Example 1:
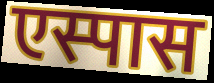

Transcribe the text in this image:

एस्पास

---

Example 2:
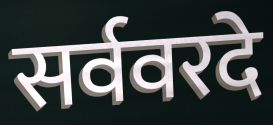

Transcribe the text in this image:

सर्ववरदे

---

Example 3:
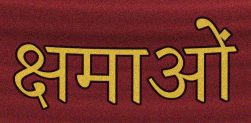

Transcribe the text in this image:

क्षमाओं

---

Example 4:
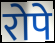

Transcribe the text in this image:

रोपे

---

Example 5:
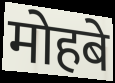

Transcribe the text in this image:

मोहबे